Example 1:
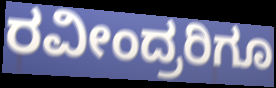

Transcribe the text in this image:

ರವೀಂದ್ರರಿಗೂ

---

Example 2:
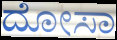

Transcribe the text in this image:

ದೋಸಾ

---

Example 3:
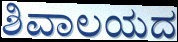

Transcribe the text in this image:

ಶಿವಾಲಯದ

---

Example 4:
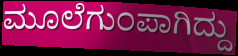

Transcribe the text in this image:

ಮೂಲೆಗುಂಪಾಗಿದ್ದು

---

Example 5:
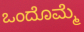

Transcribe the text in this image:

ಒಂದೊಮ್ಮೆ